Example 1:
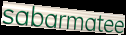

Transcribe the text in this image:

sabarmatee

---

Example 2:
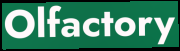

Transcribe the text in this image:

Olfactory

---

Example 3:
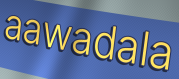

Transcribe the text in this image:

aawadala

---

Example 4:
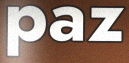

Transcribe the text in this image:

paz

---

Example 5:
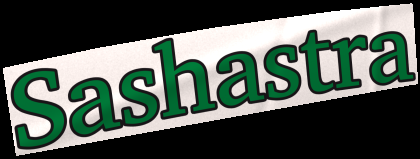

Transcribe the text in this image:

Sashastra